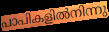
പാപികളിൽനിന്നു